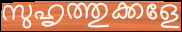
സുഹൃത്തുക്കളേ